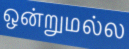
ஒன்றுமல்ல